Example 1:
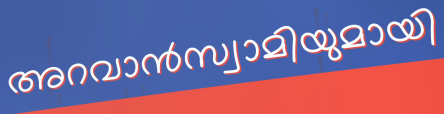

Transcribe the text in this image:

അറവാൻസ്വാമിയുമായി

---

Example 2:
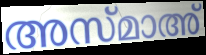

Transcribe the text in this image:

അസ്മാഅ്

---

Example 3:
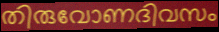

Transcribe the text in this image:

തിരുവോണദിവസം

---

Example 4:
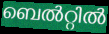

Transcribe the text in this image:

ബെൽറ്റിൽ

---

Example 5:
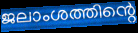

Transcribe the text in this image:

ജലാംശത്തിന്റെ